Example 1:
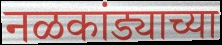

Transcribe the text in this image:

नळकांड्याच्या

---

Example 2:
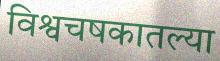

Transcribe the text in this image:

विश्वचषकातल्या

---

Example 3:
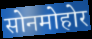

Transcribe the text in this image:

सोनमोहोर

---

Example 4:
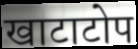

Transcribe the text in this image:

खाटाटोप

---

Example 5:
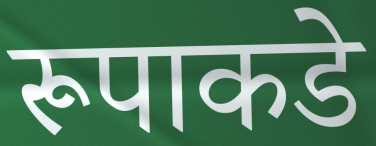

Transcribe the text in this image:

रूपाकडे